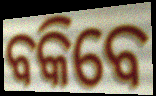
ବକିବେ